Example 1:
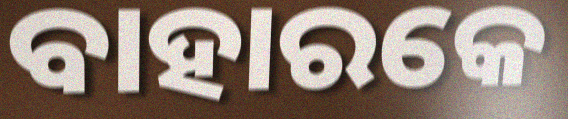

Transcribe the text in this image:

ବାହାରକେ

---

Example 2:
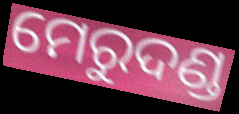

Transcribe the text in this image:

ମେରୁଦଣ୍ଡ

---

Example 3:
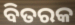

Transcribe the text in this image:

ବିତରକ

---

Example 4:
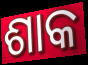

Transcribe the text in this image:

ଶାକ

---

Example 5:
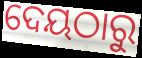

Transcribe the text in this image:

ଦେୟଠାରୁ